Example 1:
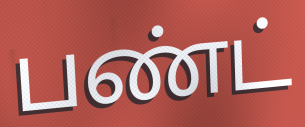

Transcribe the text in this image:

பண்ட்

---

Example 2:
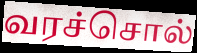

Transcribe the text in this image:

வரச்சொல்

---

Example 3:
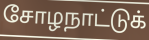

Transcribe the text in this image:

சோழநாட்டுக்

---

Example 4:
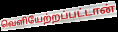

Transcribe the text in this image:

வெளியேற்றப்பட்டான்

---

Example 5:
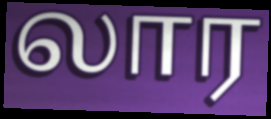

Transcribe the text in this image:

லார